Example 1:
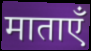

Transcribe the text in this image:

माताएँ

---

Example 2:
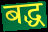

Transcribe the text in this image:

बद्ध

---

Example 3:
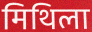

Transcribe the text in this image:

मिथिला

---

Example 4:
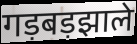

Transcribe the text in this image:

गड़बड़झाले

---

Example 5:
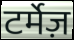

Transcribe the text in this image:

टर्मेज़